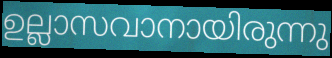
ഉല്ലാസവാനായിരുന്നു